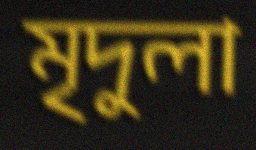
মৃদুলা